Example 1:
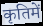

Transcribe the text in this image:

कृतिमें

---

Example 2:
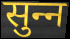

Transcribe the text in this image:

सुन्‍न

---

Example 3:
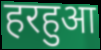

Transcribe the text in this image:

हरहुआ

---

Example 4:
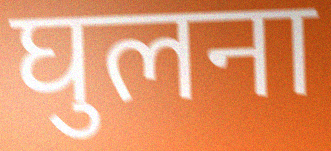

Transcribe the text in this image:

घुलना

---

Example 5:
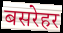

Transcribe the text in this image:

बसरेहर